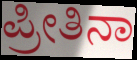
ಪ್ರೀತಿನಾ